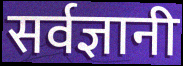
सर्वज्ञानी